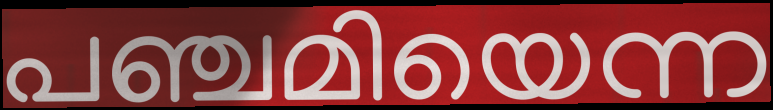
പഞ്ചമിയെന്ന